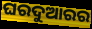
ଘରଦୁଆରର